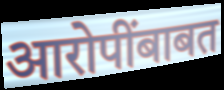
आरोपींबाबत